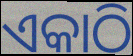
ଏକାଠି